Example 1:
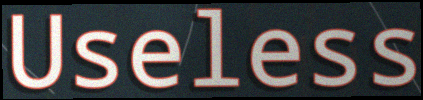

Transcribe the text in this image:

Useless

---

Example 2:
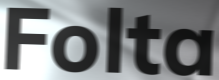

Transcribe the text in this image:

Folta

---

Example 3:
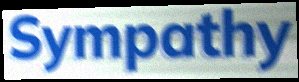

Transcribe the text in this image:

Sympathy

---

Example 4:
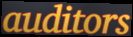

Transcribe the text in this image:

auditors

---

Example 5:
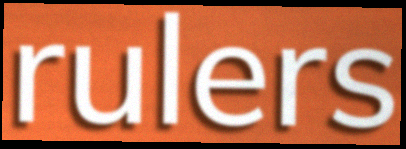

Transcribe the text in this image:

rulers